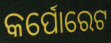
କର୍ପୋରେଟ